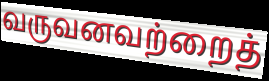
வருவனவற்றைத்